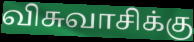
விசுவாசிக்கு